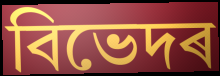
বিভেদৰ